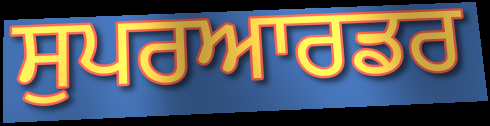
ਸੁਪਰਆਰਡਰ